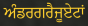
ਅੰਡਰਗਰੈਜੂਏਟਾਂ